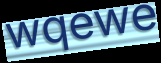
wqewe